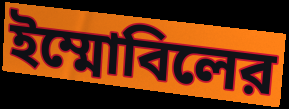
ইম্মোবিলের